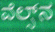
ವೆಲ್ಸ್‌ನ